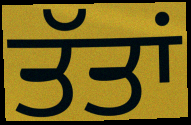
ਤੱਤਾਂ